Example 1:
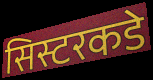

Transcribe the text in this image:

सिस्टरकडे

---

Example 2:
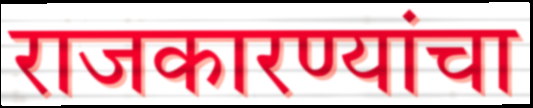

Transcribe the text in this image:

राजकारण्यांचा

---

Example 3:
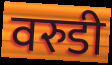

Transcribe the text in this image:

वरुडी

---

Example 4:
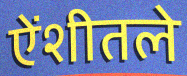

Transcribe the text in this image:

ऐंशीतले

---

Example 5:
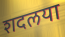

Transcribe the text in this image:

शदलया